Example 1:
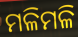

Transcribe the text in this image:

ମଳିମଳି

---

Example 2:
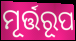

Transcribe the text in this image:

ମୂର୍ତ୍ତରୂପ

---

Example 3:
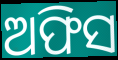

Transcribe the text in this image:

ଅଫିସ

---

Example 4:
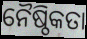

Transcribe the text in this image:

ନୈଷ୍ଠିକତା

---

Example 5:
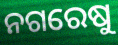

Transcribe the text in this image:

ନଗରେଷୁ